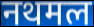
नथमल